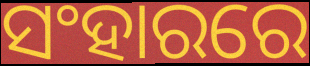
ସଂହାରରେ